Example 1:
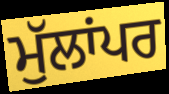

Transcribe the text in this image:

ਮੁੱਲਾਂਪਰ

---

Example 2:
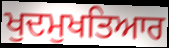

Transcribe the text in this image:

ਖੁਦਮੁਖਤਿਆਰ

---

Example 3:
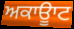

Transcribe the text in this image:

ਅਕਾਊਾਟ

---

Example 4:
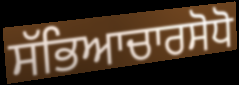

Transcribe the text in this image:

ਸੱਭਿਆਚਾਰਸੋਧੋ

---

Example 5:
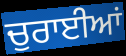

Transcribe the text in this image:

ਚੁਰਾਈਆਂ